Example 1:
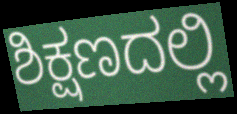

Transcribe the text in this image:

ಶಿಕ್ಷಣದಲ್ಲಿ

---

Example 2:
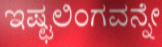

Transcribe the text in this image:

ಇಷ್ಟಲಿಂಗವನ್ನೇ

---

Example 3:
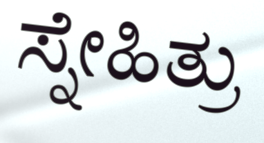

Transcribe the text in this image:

ಸ್ನೇಹಿತ್ರು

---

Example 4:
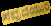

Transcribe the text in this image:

ಸವುದೆಯುರಿ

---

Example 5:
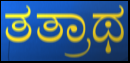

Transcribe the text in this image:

ತತ್ರಾಥ